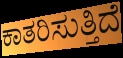
ಕಾತರಿಸುತ್ತಿದೆ